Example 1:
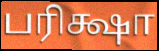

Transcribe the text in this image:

பரிக்ஷா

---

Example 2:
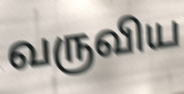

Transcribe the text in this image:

வருவிய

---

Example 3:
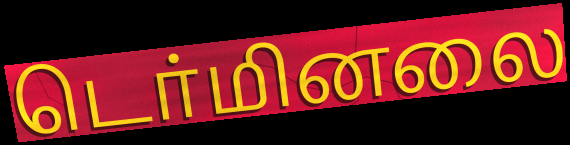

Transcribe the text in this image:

டெர்மினலை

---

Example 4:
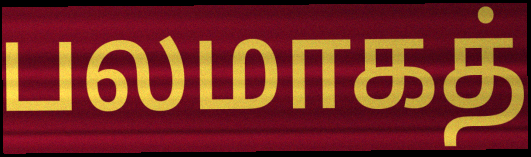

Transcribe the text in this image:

பலமாகத்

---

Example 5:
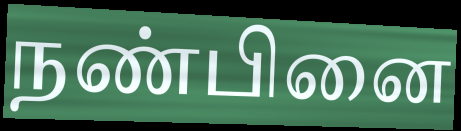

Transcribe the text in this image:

நண்பினை